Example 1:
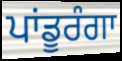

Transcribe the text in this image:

ਪਾਂਡੂਰੰਗਾ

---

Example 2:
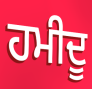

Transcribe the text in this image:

ਹਮੀਦੂ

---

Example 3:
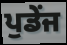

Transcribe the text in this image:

ਪੁਡੇਂਜ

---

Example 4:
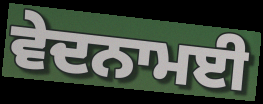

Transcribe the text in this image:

ਵੇਦਨਾਮਈ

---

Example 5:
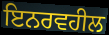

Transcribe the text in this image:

ਇਨਰਵਹੀਲ